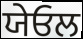
ਯੇਓਲ